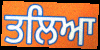
ਤਲਿਆ